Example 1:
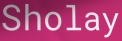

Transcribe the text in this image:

Sholay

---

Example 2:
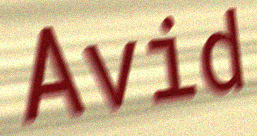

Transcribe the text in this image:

Avid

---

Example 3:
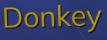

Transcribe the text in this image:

Donkey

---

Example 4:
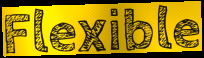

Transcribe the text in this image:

Flexible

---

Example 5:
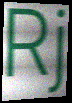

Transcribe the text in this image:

Rj